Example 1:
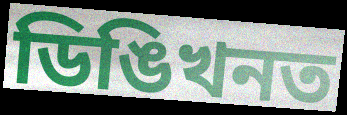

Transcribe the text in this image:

ডিঙিখনত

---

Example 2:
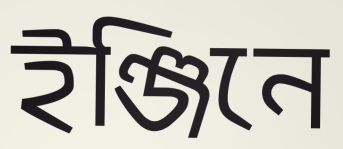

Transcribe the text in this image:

ইঞ্জিনে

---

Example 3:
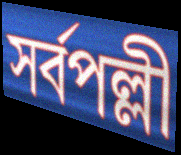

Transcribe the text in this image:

সৰ্বপল্লী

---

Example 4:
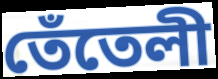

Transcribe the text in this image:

তেঁতেলী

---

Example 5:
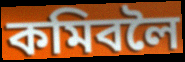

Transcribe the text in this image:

কমিবলৈ